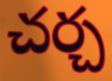
చర్చ